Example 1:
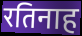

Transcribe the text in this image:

रतिनाह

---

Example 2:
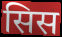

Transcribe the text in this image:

सिस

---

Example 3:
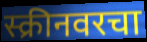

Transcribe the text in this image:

स्क्रीनवरचा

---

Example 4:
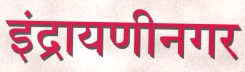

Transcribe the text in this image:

इंद्रायणीनगर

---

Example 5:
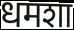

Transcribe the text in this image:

धमशा